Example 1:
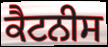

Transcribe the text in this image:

ਕੈਟਨੀਸ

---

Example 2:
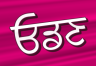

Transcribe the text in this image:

ਓਡਣ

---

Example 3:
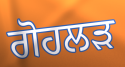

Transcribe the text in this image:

ਗੋਹਲੜ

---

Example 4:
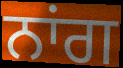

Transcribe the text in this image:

ਨਾਂਗ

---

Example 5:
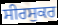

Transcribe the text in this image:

ਸੀਰਸੁਕਰ